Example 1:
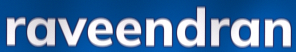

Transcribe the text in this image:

raveendran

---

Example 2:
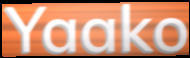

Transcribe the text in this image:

Yaako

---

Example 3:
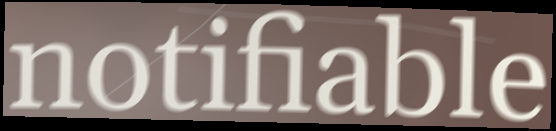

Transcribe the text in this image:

notifiable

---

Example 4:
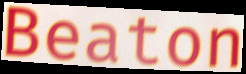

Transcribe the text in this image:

Beaton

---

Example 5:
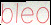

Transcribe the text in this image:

bleo